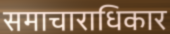
समाचाराधिकार